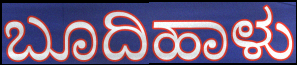
ಬೂದಿಹಾಳು